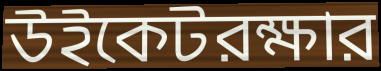
উইকেটরক্ষার